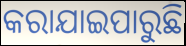
କରାଯାଇପାରୁଛି